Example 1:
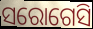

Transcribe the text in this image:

ସରୋଗେସି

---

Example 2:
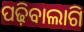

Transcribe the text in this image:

ପଢ଼ିବାଲାଗି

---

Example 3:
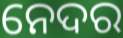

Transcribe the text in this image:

ନେଦର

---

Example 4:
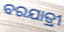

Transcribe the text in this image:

ବରଯାତ୍ରୀ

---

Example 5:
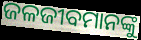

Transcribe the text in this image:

ଜଳଜୀବମାନଙ୍କୁ